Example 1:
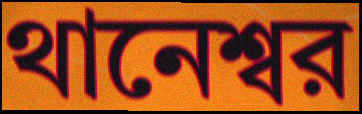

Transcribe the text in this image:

থানেশ্বর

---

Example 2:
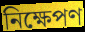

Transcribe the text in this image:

নিক্ষেপণ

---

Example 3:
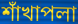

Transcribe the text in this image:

শাঁখাপলা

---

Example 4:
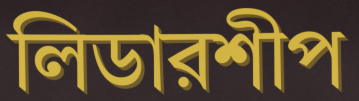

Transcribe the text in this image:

লিডারশীপ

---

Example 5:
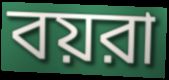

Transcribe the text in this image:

বয়রা